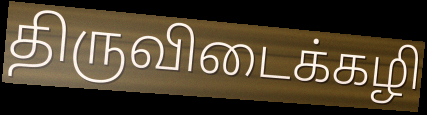
திருவிடைக்கழி